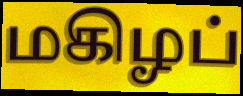
மகிழப்